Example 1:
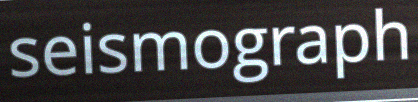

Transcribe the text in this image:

seismograph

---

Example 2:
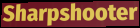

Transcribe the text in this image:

Sharpshooter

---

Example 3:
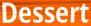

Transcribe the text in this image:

Dessert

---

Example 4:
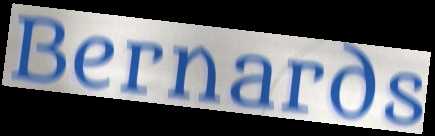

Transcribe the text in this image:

Bernards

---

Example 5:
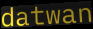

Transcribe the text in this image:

datwan